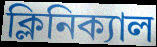
ক্লিনিক্যাল